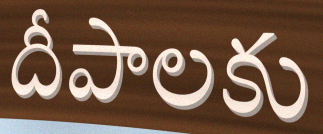
దీపాలకు